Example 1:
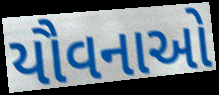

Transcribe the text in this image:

યૌવનાઓ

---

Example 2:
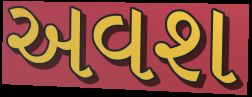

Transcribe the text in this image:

અવશ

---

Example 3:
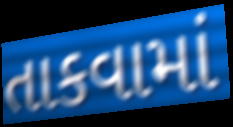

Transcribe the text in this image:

તાકવામાં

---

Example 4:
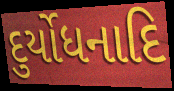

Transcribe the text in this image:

દુર્યોધનાદિ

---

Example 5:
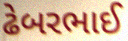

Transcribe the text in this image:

ઢેબરભાઈ